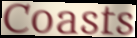
Coasts